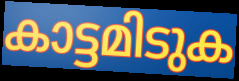
കാട്ടമിടുക